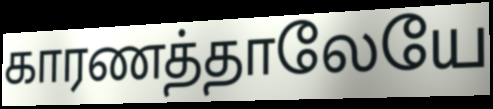
காரணத்தாலேயே